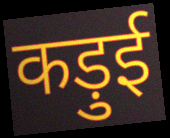
कड़ुई